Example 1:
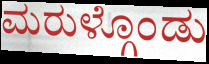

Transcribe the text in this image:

ಮರುಳ್ಗೊಂಡು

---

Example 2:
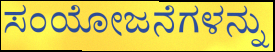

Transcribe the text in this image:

ಸಂಯೋಜನೆಗಳನ್ನು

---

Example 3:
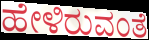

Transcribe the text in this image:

ಹೇಳಿರುವಂತೆ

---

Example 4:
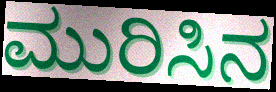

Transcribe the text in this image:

ಮುರಿಸಿನ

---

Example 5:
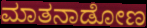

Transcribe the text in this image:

ಮಾತನಾಡೋಣ